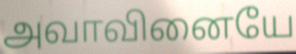
அவாவினையே